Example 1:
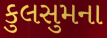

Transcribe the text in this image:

કુલસુમના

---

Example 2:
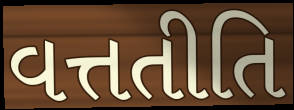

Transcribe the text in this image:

વત્તતીતિ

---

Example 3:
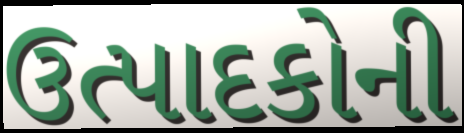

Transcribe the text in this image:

ઉત્પાદકોની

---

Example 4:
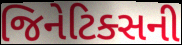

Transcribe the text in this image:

જિનેટિક્સની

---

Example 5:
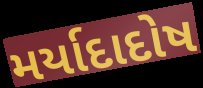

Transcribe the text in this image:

મર્યાદાદોષ